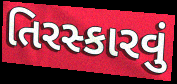
તિરસ્કારવું